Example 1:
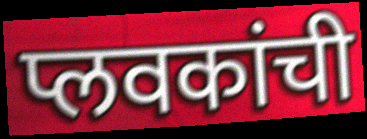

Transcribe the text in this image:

प्लवकांची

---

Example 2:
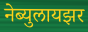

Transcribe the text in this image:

नेब्युलायझर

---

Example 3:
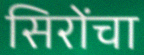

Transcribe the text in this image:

सिरोंचा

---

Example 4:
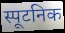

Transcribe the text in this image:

स्पूटनिक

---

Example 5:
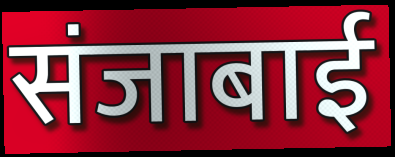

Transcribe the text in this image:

संजाबाई